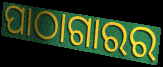
ପାଠାଗାରର